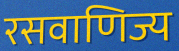
रसवाणिज्य